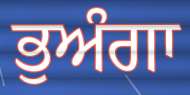
ਭੁਅੰਗਾ